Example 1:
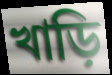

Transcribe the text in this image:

খাড়ি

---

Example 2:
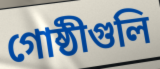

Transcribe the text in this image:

গোষ্ঠীগুলি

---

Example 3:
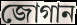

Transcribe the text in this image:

জোগান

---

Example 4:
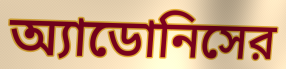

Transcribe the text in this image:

অ্যাডোনিসের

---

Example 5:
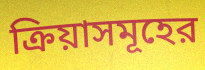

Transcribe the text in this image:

ক্রিয়াসমূহের